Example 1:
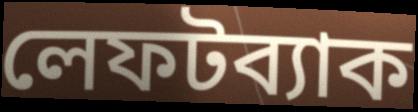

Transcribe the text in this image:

লেফটব্যাক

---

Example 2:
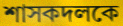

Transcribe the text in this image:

শাসকদলকে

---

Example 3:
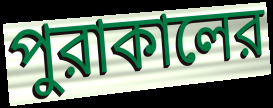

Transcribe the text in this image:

পুরাকালের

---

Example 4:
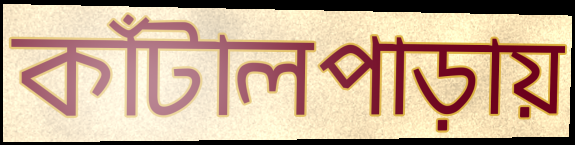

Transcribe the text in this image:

কাঁটালপাড়ায়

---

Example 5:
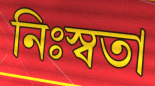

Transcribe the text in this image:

নিঃস্বতা